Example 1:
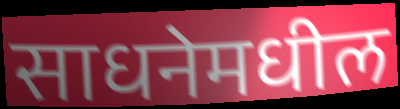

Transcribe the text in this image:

साधनेमधील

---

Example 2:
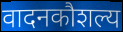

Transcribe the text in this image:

वादनकौशल्य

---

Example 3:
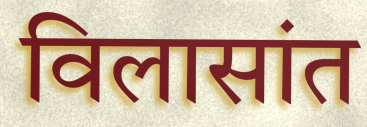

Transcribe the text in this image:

विलासांत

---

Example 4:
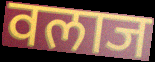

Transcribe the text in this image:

वलाज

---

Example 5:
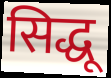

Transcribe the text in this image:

सिद्धू